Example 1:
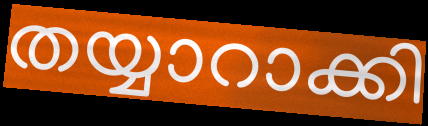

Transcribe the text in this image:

തയ്യാറാക്കി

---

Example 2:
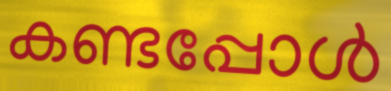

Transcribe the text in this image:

കണ്ടപ്പോൾ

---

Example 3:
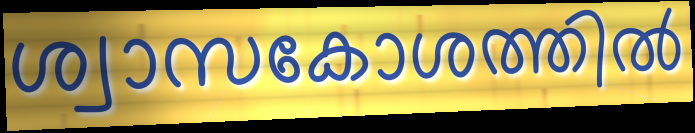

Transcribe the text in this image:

ശ്വാസകോശത്തിൽ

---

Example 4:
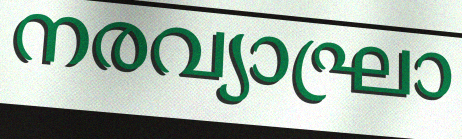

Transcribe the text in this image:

നരവ്യാഘ്രാ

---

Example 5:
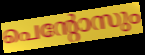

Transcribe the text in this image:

പെന്റോസും